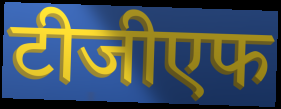
टीजीएफ